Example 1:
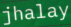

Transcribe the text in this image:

jhalay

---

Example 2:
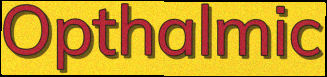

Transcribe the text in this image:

Opthalmic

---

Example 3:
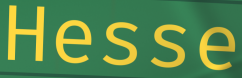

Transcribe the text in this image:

Hesse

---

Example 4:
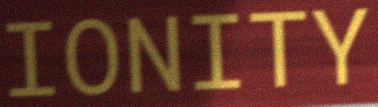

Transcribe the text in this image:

IONITY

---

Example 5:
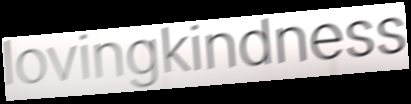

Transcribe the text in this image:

lovingkindness